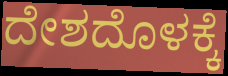
ದೇಶದೊಳಕ್ಕೆ